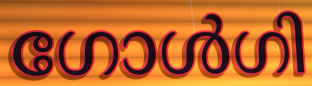
ഗോൾഗി